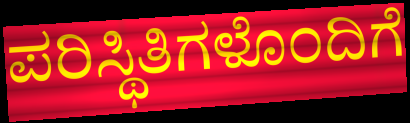
ಪರಿಸ್ಥಿತಿಗಳೊಂದಿಗೆ